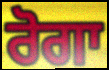
ਰੋਗਾ